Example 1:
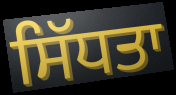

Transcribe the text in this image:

ਸਿੱਧਤਾ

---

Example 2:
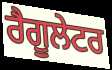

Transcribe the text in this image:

ਰੈਗੂਲੇਟਰ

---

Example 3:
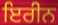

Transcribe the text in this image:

ਇਰੀਨ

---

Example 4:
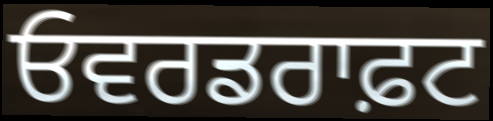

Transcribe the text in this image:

ਓਵਰਡਰਾਫ਼ਟ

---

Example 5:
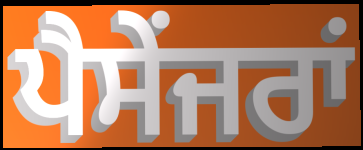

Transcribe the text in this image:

ਪੈਸੇਂਜਰਾਂ